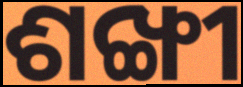
ଶଙ୍ଖୀ